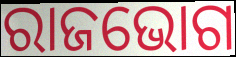
ରାଜଭୋଗ